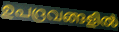
ഉപദ്രവങ്ങളിൽ